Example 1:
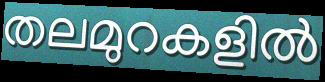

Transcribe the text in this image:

തലമുറകളിൽ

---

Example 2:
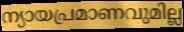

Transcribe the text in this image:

ന്യായപ്രമാണവുമില്ല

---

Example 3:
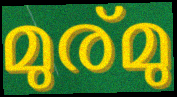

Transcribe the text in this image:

മുര്മു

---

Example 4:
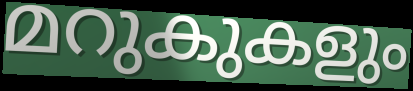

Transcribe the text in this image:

മറുകുകളും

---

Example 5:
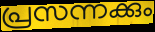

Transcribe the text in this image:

പ്രസന്നക്കും